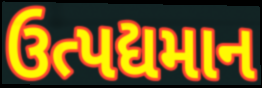
ઉત્પદ્યમાન